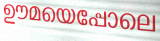
ഊമയെപ്പോലെ